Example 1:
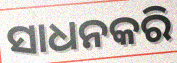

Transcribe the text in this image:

ସାଧନକରି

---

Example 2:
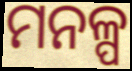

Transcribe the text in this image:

ମନଳ୍ପ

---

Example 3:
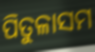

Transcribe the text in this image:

ପିତୁଳାସମ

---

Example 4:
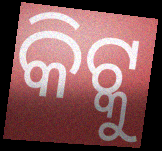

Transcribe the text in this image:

କିଟ୍କୁ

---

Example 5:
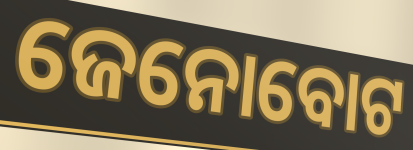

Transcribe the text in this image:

ଜେନୋବୋଟ